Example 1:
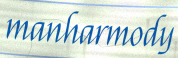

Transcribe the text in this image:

manharmody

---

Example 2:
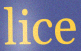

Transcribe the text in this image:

lice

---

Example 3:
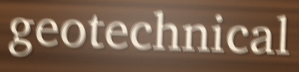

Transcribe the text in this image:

geotechnical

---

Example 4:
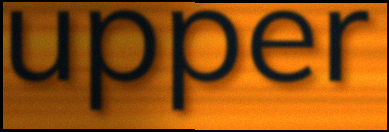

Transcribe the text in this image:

upper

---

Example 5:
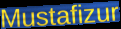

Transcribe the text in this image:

Mustafizur